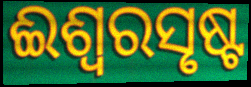
ଈଶ୍ୱରସୃଷ୍ଟ